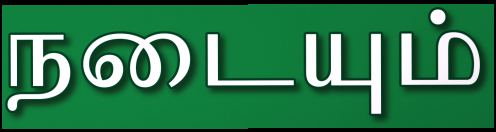
நடையும்